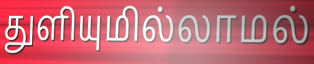
துளியுமில்லாமல்